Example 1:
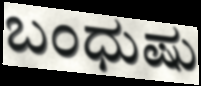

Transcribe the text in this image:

ಬಂಧುಷು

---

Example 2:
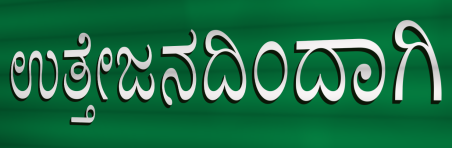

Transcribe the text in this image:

ಉತ್ತೇಜನದಿಂದಾಗಿ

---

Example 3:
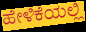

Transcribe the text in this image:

ಹೇಳಿಕೆಯಲ್ಲಿ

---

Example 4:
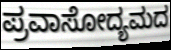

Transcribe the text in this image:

ಪ್ರವಾಸೋದ್ಯಮದ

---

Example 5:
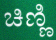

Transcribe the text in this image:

ಚಿಣ್ಣಿ